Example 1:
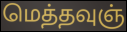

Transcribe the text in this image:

மெத்தவுஞ்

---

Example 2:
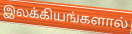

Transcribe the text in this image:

இலக்கியங்களால்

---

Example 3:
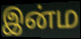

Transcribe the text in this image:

இன்ம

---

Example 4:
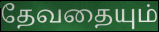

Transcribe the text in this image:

தேவதையும்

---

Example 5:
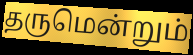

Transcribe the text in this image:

தருமென்றும்